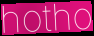
hotho